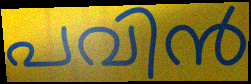
പവിൻ